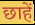
छाहें